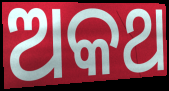
ଅକଥ